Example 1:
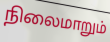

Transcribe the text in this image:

நிலைமாறும்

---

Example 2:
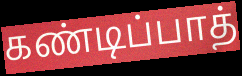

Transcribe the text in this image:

கண்டிப்பாத்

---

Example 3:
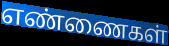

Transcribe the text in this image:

எண்ணைகள்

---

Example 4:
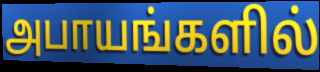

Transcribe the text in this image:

அபாயங்களில்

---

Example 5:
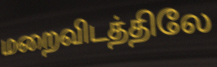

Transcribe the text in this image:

மறைவிடத்திலே